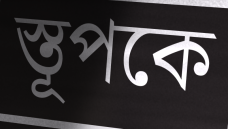
স্তূপকে